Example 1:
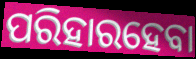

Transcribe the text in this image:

ପରିହାରହେବା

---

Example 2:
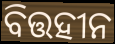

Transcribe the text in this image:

ବିତ୍ତହୀନ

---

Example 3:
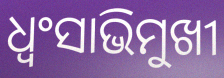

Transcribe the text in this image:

ଧ୍ଵଂସାଭିମୁଖୀ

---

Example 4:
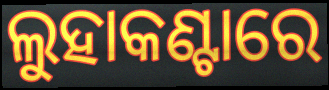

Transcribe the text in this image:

ଲୁହାକଣ୍ଟାରେ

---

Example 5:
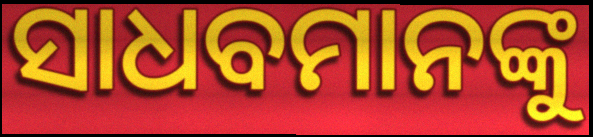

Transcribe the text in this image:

ସାଧବମାନଙ୍କୁ